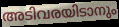
അടിവരയിടാനും